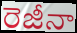
రెజీనా